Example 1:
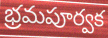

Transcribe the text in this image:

భ్రమపూర్వక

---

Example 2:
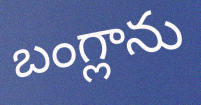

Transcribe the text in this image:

బంగ్లాను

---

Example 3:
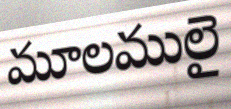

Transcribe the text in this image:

మూలములై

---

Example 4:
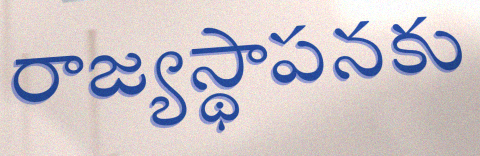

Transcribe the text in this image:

రాజ్యస్థాపనకు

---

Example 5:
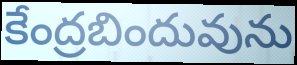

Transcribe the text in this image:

కేంద్రబిందువును